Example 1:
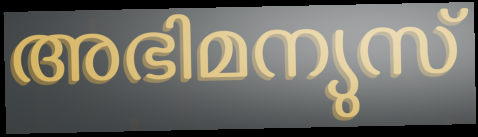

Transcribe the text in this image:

അഭിമന്യുസ്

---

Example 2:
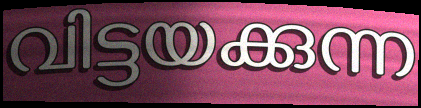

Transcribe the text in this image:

വിട്ടയക്കുന്ന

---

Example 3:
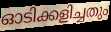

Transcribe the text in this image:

ഓടിക്കളിച്ചതും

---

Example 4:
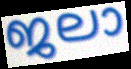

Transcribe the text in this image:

ജലാ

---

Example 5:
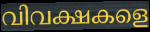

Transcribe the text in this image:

വിവക്ഷകളെ